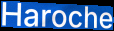
Haroche